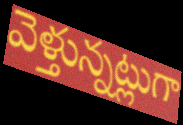
వెళ్తున్నట్లుగా